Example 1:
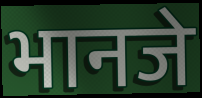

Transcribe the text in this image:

भानजे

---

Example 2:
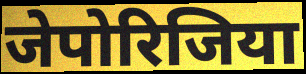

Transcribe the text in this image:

जेपोरिजिया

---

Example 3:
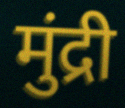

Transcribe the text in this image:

मुंद्री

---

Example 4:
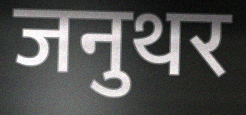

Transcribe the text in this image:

जनुथर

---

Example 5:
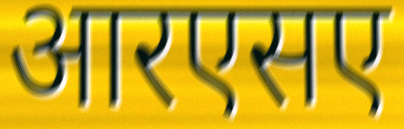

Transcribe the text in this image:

आरएसए